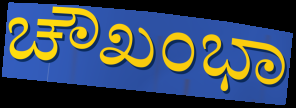
ಚೌಖಂಭಾ